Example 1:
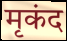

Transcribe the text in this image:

मृकंद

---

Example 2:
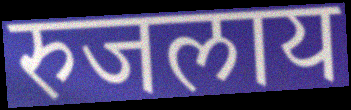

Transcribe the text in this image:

रुजलाय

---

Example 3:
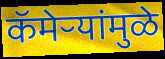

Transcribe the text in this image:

कॅमेऱ्यांमुळे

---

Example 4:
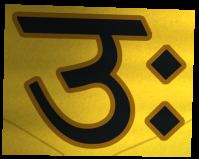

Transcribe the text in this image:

उः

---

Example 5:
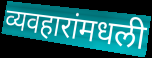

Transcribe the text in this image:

व्यवहारांमधली